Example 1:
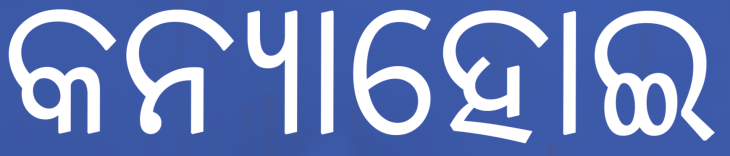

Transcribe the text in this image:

କନ୍ୟାହୋଇ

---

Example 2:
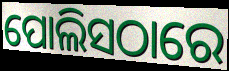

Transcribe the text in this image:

ପୋଲିସଠାରେ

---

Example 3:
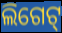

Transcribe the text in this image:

ଲିଗେଟ୍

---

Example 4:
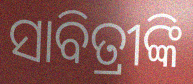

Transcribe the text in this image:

ସାବିତ୍ରୀଙ୍କି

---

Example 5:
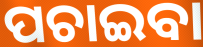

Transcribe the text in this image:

ପଚାଇବା